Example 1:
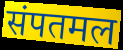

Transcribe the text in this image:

संपतमल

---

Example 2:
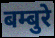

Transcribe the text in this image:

बम्बुरे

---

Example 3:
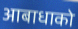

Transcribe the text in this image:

आबाधाको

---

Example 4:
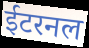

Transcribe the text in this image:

ईटरनल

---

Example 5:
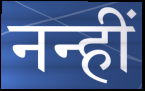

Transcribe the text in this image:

नन्हीं